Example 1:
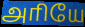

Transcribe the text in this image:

அரியே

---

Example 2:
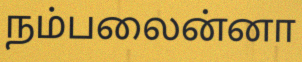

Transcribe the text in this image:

நம்பலைன்னா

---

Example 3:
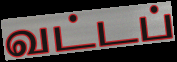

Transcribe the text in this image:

வட்டப்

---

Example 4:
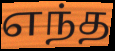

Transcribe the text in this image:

எந்த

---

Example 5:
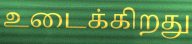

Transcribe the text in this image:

உடைக்கிறது